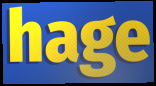
hage